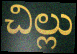
చిల్లు